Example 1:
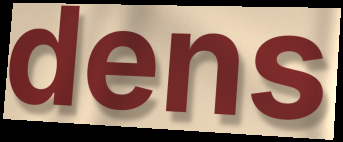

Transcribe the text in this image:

dens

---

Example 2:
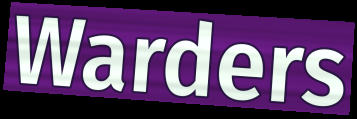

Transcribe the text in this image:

Warders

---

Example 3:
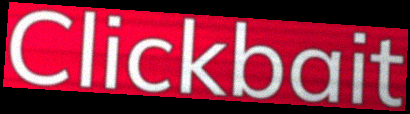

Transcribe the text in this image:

Clickbait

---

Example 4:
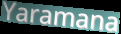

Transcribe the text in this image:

Yaramana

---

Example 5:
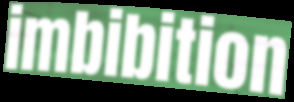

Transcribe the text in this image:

imbibition